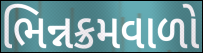
ભિન્નક્રમવાળો